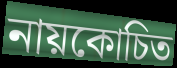
নায়কোচিত